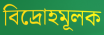
বিদ্রোহমূলক